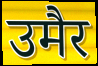
उमैर